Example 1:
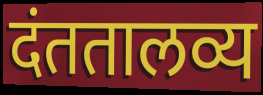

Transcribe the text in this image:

दंततालव्य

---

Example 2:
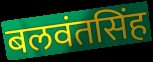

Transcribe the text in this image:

बलवंतसिंह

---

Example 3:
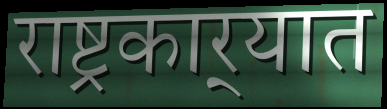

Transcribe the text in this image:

राष्ट्रकार्यात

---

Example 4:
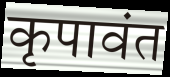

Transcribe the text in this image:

कृपावंत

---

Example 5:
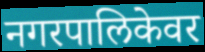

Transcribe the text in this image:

नगरपालिकेवर